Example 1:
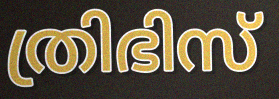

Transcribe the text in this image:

ത്രിഭിസ്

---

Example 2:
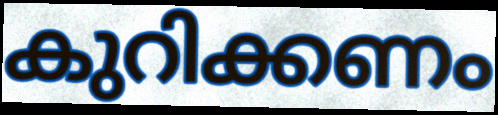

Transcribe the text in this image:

കുറിക്കണം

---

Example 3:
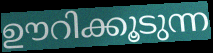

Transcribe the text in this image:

ഊറിക്കൂടുന്ന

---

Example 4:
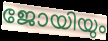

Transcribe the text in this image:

ജോയിയും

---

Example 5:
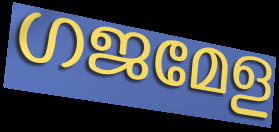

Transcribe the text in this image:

ഗജമേള